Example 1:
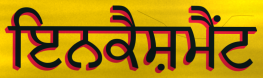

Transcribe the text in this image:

ਇਨਕੈਸ਼ਮੈਂਟ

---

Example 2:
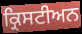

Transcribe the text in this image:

ਕ੍ਰਿਸਟੀਅਨ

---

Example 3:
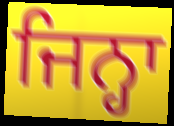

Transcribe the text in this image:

ਜਿਨ੍ਹ੍ਹਾ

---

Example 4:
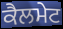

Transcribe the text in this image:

ਕੈਲਮੇਟ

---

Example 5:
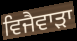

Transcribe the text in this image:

ਵਿਜੈਵਾੜਾ